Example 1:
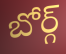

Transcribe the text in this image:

బోర్గ్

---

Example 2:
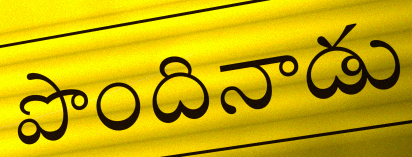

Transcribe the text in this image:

పొందినాడు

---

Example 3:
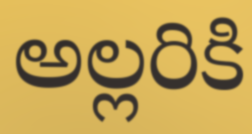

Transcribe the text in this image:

అల్లరికి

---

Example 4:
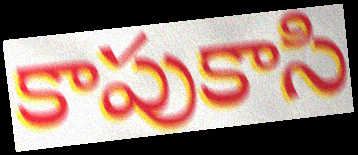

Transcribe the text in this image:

కాపుకాసి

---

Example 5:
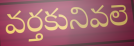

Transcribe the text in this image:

వర్తకునివలె